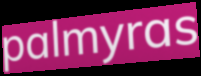
palmyras